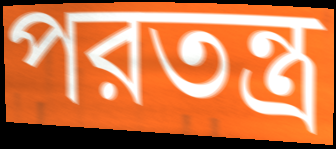
পরতন্ত্র